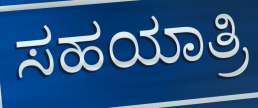
ಸಹಯಾತ್ರಿ